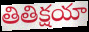
తితిక్షయా